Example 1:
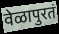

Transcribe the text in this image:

वेळापुरतं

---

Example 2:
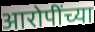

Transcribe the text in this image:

आरोपींच्या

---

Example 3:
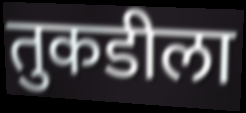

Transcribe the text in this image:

तुकडीला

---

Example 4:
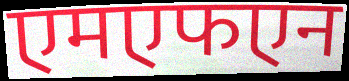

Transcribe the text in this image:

एमएफएन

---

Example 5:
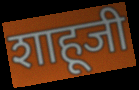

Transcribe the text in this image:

शाहूजी